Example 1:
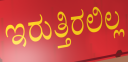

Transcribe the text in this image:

ಇರುತ್ತಿರಲಿಲ್ಲ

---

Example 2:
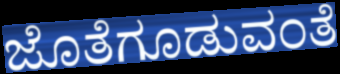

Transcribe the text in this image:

ಜೊತೆಗೂಡುವಂತೆ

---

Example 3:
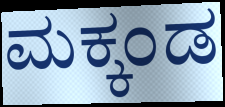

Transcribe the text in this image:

ಮಕ್ಕಂಡ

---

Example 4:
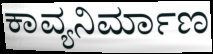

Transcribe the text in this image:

ಕಾವ್ಯನಿರ್ಮಾಣ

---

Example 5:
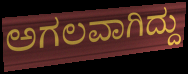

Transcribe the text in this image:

ಅಗಲವಾಗಿದ್ದು